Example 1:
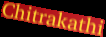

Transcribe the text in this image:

Chitrakathi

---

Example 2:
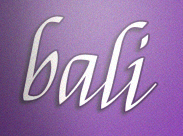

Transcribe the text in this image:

bali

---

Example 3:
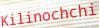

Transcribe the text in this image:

Kilinochchi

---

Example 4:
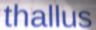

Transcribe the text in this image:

thallus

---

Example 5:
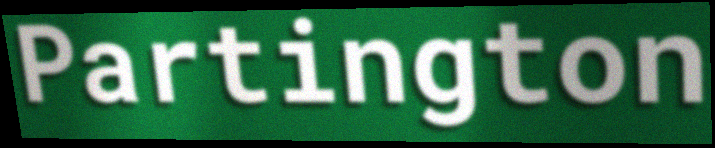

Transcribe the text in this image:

Partington